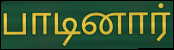
பாடினார்